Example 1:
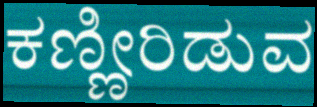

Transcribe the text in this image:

ಕಣ್ಣೀರಿಡುವ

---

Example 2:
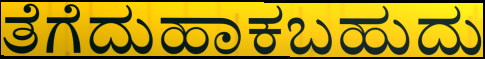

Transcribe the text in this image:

ತೆಗೆದುಹಾಕಬಹುದು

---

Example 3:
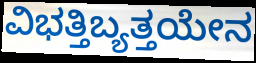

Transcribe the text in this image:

ವಿಭತ್ತಿಬ್ಯತ್ತಯೇನ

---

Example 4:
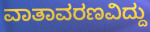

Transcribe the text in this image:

ವಾತಾವರಣವಿದ್ದು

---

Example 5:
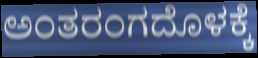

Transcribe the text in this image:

ಅಂತರಂಗದೊಳಕ್ಕೆ